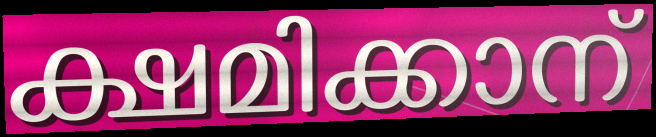
ക്ഷമിക്കാന്